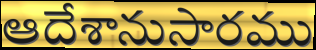
ఆదేశానుసారము